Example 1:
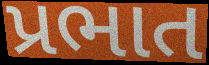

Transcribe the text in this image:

પ્રભાત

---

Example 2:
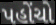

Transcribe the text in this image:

પહોંચો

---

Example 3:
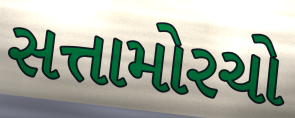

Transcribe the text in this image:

સત્તામોરચો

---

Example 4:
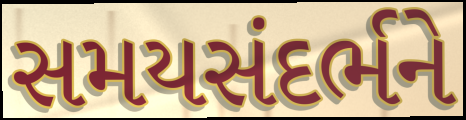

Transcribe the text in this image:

સમયસંદર્ભને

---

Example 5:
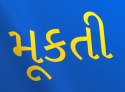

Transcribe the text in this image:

મૂકતી